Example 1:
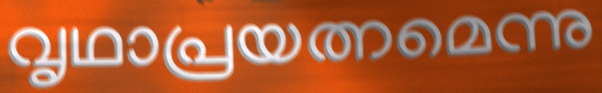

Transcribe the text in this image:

വൃഥാപ്രയത്നമെന്നു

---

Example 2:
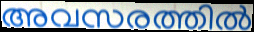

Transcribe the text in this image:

അവസരത്തിൽ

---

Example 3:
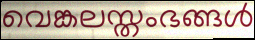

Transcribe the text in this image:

വെങ്കലസ്തംഭങ്ങൾ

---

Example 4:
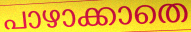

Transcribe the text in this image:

പാഴാക്കാതെ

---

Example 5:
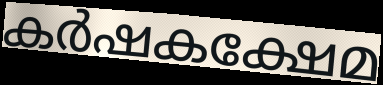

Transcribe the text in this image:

കർഷകക്ഷേമ